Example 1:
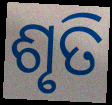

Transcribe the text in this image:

ଶୃତି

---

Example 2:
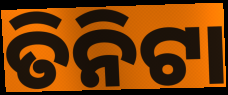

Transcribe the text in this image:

ତିନିଟା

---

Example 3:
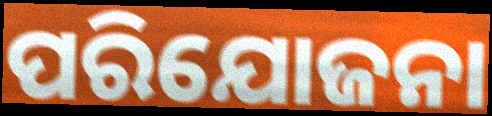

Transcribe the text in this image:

ପରିଯୋଜନା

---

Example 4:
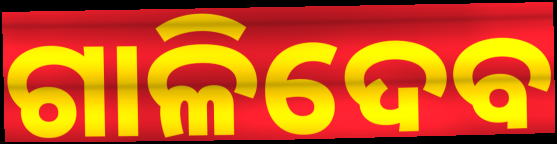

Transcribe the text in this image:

ଗାଳିଦେବ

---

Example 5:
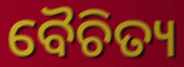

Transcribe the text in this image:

ବୈଚିତ୍ୟ